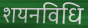
शयनविधि